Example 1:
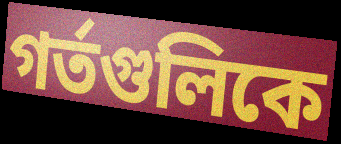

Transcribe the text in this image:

গর্তগুলিকে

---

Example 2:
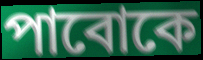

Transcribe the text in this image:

পাবোকে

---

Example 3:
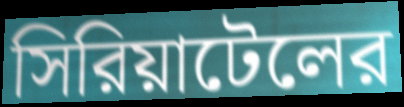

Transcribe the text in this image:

সিরিয়াটেলের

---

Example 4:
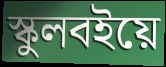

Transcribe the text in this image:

স্কুলবইয়ে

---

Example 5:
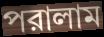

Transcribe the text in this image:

পরালাম